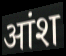
आंश